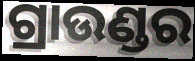
ଗ୍ରାଉଣ୍ଡର